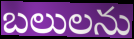
బలులను